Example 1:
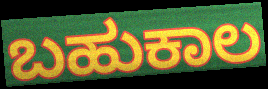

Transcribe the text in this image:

ಬಹುಕಾಲ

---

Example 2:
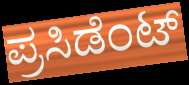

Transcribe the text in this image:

ಪ್ರಸಿಡೆಂಟ್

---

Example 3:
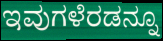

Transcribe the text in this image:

ಇವುಗಳೆರಡನ್ನೂ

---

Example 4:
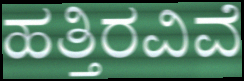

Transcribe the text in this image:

ಹತ್ತಿರವಿವೆ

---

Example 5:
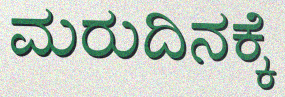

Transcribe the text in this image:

ಮರುದಿನಕ್ಕೆ